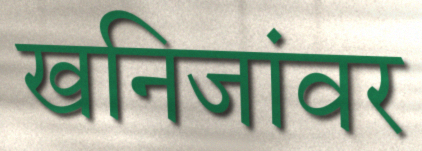
खनिजांवर